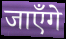
जाएँगे